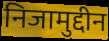
निजामुद्दीन